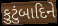
કુટુંબાદિને